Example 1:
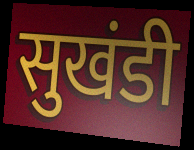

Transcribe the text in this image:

सुखंडी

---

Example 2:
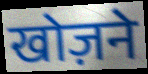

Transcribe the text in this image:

खोज़ने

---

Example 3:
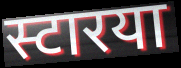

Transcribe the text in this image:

स्टारया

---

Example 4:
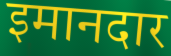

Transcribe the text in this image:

इमानदार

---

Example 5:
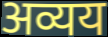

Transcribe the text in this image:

अव्यय